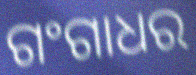
ଗଂଗାଧର